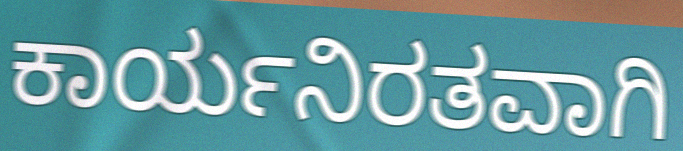
ಕಾರ್ಯನಿರತವಾಗಿ